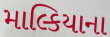
માલ્કિયાના